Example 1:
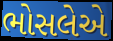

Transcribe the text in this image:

ભોસલેએ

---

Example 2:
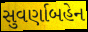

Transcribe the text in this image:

સુવર્ણાબહેન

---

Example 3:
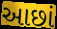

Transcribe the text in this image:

આછાં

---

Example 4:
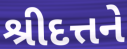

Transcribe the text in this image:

શ્રીદત્તને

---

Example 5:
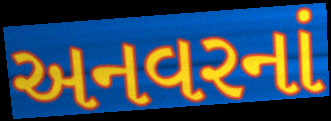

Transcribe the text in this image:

અનવરનાં